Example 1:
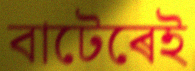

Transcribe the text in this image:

বাটেৰেই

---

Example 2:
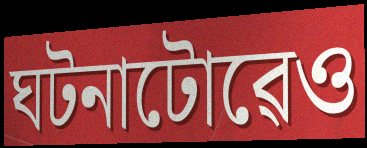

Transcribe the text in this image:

ঘটনাটোৱেও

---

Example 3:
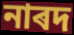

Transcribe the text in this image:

নাৰদ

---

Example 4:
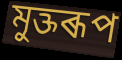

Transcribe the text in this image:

মুক্তৰূপ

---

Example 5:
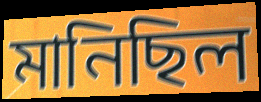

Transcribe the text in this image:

মানিছিল